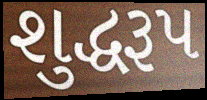
શુદ્ધરૂપ